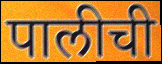
पालीची